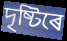
দৃষ্টিৰে